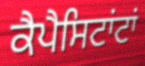
ਕੈਪੈਸਿਟਾਂਟਾਂ